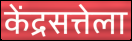
केंद्रसत्तेला